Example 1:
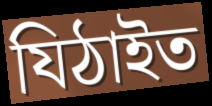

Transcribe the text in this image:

যিঠাইত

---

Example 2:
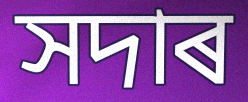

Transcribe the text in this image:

সদাৰ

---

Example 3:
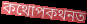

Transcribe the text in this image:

কথোপকথনত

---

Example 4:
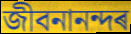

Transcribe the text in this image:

জীবনানন্দৰ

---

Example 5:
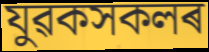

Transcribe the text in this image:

যুৱকসকলৰ